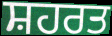
ਸ਼ਹਰਤ